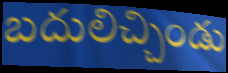
బదులిచ్చిండు